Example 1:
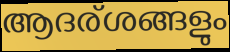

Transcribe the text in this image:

ആദര്ശങ്ങളും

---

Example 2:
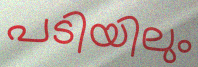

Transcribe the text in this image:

പടിയിലും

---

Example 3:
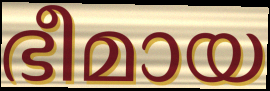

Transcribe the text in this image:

ഭീമായ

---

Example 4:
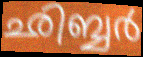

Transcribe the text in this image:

ഛിബ്ബർ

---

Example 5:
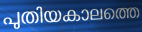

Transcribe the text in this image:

പുതിയകാലത്തെ